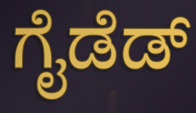
ಗೈಡೆಡ್